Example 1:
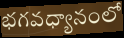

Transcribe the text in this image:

భగవధ్యానంలో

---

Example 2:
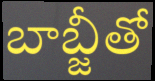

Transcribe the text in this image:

బాబ్జీతో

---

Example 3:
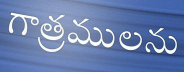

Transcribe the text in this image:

గాత్రములను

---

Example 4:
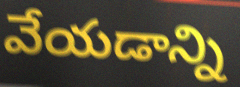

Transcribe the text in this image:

వేయడాన్ని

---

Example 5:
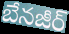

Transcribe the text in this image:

బేనజీర్